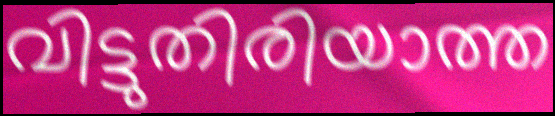
വിട്ടുതിരിയാത്ത